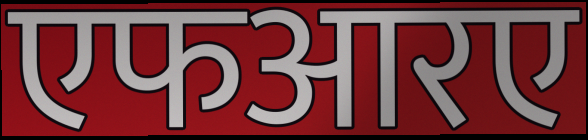
एफआरए